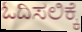
ಓದಿಸಲಿಕ್ಕೆ